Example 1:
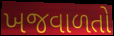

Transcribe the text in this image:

ખજવાળતો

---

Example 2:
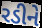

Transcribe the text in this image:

રડીને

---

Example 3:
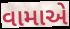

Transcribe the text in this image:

વામાએ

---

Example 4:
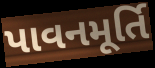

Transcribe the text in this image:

પાવનમૂર્તિ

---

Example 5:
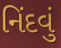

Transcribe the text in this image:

નિંદવું